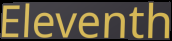
Eleventh